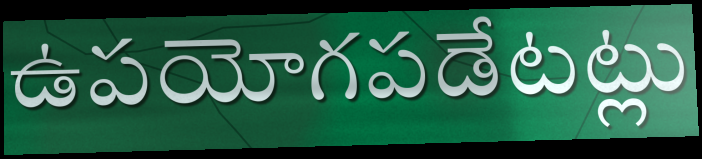
ఉపయోగపడేటట్లు